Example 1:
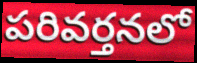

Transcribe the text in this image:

పరివర్తనలో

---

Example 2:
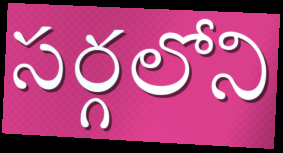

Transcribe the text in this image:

సర్గలోని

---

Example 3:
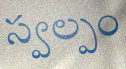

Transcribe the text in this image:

స్వల్పం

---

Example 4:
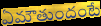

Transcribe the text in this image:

ఏమౌతుందంటే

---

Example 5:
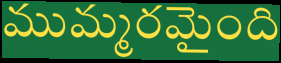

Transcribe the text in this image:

ముమ్మరమైంది